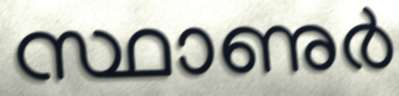
സ്ഥാണുർ